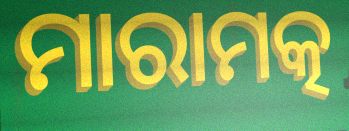
ମାରାମତ୍କ